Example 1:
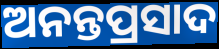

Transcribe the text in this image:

ଅନନ୍ତପ୍ରସାଦ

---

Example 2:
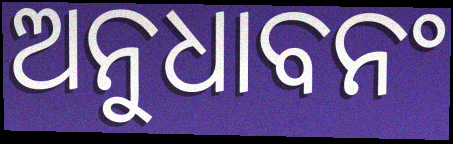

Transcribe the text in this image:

ଅନୁଧାବନଂ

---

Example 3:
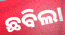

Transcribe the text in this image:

ଛବିଲା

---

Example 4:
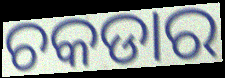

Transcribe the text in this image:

ଚକଡାର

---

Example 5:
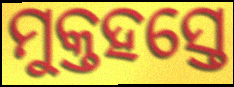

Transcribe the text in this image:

ମୁକ୍ତହସ୍ତେ